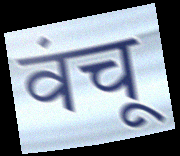
वंचू